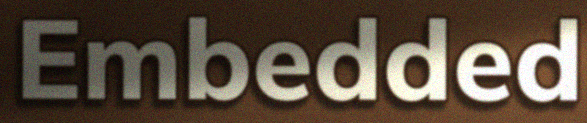
Embedded